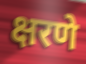
क्षरणे